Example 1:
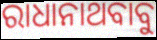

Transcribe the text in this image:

ରାଧାନାଥବାବୁ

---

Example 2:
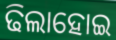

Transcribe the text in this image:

ଢିଲାହୋଇ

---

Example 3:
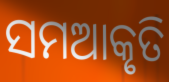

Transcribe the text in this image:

ସମଆକୃତି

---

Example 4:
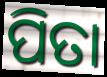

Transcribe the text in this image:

ପିତା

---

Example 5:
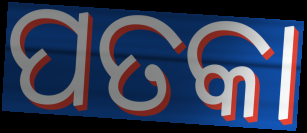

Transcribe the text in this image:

ପତକା